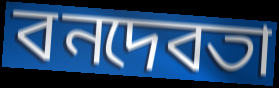
বনদেবতা